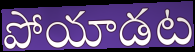
పోయాడట